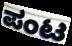
ಪಂಟ